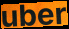
uber